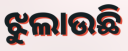
ଝୁଲାଉଛି